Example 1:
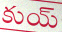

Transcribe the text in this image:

కుయ్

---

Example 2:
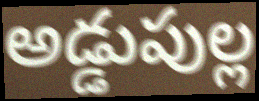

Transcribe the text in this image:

అడ్డుపుల్ల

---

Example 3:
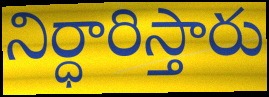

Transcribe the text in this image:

నిర్ధారిస్తారు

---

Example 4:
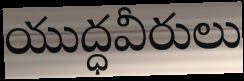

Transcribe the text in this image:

యుద్ధవీరులు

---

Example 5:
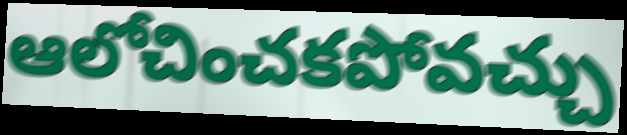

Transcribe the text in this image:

ఆలోచించకపోవచ్చు